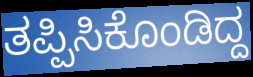
ತಪ್ಪಿಸಿಕೊಂಡಿದ್ದ